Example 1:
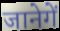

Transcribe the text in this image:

जानेगें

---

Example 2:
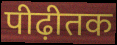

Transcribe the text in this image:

पीढ़ीतक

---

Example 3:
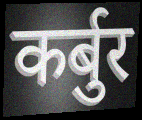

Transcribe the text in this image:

कर्बुर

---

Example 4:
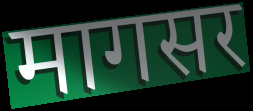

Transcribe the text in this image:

मागसर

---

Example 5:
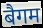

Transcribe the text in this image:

बैगम